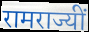
रामराज्यीं